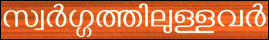
സ്വർഗ്ഗത്തിലുള്ളവർ